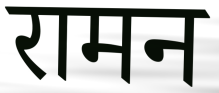
रामन